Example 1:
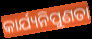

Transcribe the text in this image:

କାର୍ଯ୍ୟନିପୁଣତା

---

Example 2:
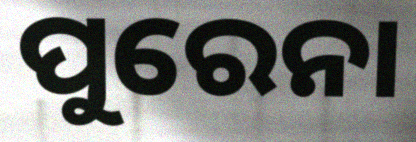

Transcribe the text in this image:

ପୁରେନା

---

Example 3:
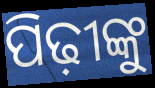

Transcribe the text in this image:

ପିଢ଼ୀଙ୍କୁ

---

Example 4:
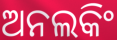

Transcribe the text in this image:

ଅନଲକିଂ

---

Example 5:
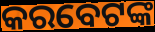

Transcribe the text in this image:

କରବେଟଙ୍କ